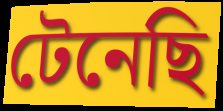
টেনেছি